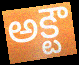
అక్టౌ